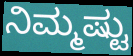
ನಿಮ್ಮಷ್ಟು